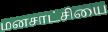
மனசாட்சியை